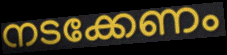
നടക്കേണം